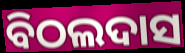
ବିଠଲଦାସ